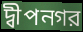
দ্বীপনগর